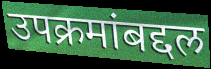
उपक्रमांबद्दल